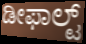
ಡೀಫಾಲ್ಟ್